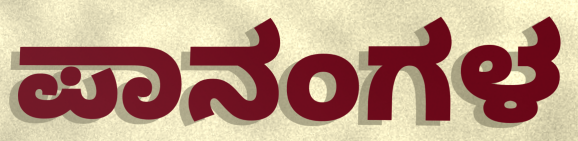
ಪಾನಂಗಳ